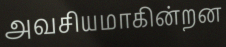
அவசியமாகின்றன